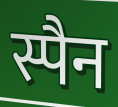
स्पैन